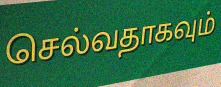
செல்வதாகவும்